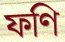
ফণি